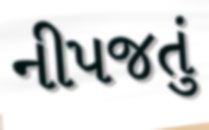
નીપજતું